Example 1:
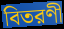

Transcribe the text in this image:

বিতরণী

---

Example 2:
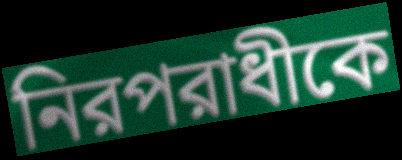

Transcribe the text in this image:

নিরপরাধীকে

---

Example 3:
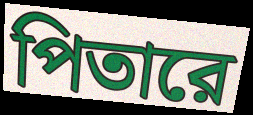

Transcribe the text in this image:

পিতারে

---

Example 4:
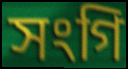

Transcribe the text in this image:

সংগি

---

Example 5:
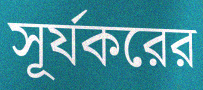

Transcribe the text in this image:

সূর্যকরের